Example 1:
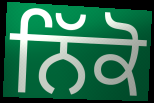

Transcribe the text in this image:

ਨਿੱਕੋ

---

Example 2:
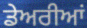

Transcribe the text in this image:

ਡੇਅਰੀਆਂ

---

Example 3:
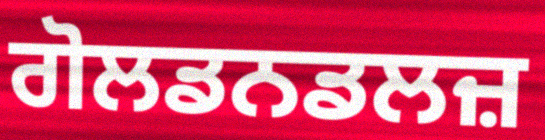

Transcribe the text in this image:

ਗੋਲਡਨਡਲਜ਼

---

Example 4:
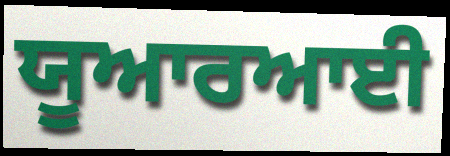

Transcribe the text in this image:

ਯੂਆਰਆਈ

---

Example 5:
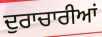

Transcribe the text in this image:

ਦੁਰਾਚਾਰੀਆਂ